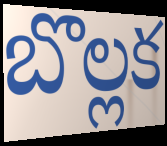
బొల్లక